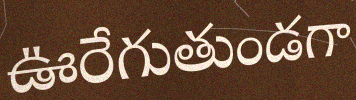
ఊరేగుతుండగా